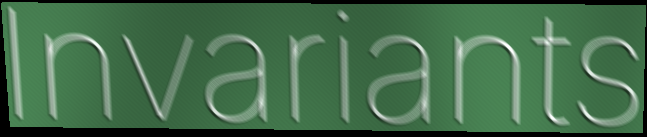
Invariants